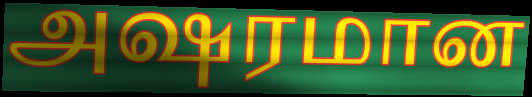
அஷரமான